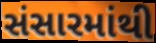
સંસારમાંથી